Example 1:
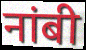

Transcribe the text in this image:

नांबी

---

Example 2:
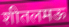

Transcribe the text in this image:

शीतलमऊ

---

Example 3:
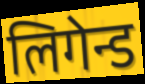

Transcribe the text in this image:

लिगेन्ड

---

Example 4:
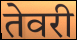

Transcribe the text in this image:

तेवरी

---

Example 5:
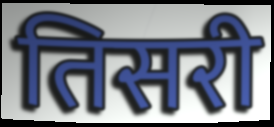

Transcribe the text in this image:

तिसरी